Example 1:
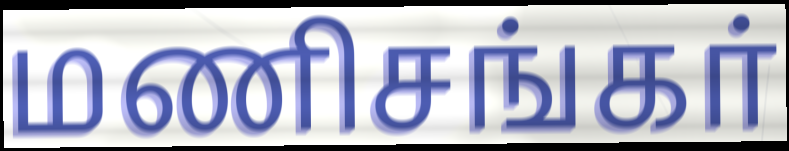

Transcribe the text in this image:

மணிசங்கர்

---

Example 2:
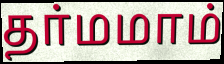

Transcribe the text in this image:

தர்மமாம்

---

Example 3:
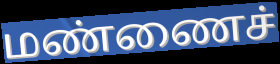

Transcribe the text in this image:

மண்ணைச்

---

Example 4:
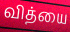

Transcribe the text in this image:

வித்யை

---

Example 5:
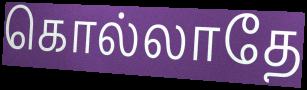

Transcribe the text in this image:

கொல்லாதே